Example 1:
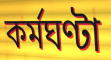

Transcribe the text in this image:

কৰ্মঘণ্টা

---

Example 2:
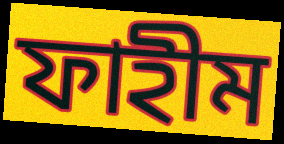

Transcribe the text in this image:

ফাহীম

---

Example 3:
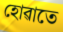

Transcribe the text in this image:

হোৱাতে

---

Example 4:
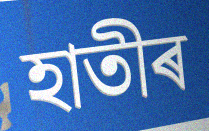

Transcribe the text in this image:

হাতীৰ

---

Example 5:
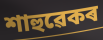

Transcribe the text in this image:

শাহুৱেকৰ